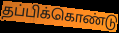
தப்பிக்கொண்டு